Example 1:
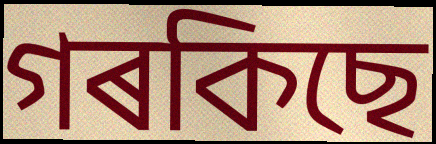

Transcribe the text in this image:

গৰকিছে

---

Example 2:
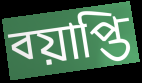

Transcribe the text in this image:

ব্য়াপ্তি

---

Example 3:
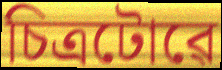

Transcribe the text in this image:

চিত্ৰটোৱে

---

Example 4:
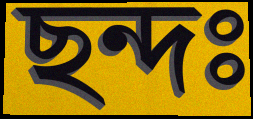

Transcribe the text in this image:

ছন্দঃ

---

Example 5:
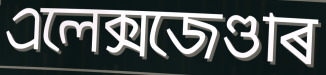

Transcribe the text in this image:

এলেক্সজেণ্ডাৰ